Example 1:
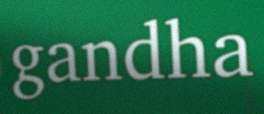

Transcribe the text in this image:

gandha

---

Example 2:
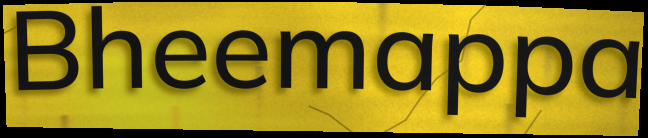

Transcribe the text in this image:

Bheemappa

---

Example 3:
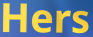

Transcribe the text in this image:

Hers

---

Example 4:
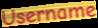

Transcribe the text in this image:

Username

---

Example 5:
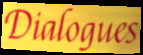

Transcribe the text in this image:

Dialogues